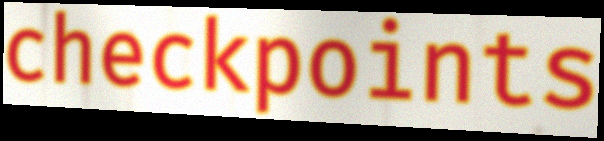
checkpoints